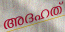
അദഹത്